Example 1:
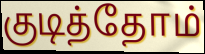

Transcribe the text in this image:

குடித்தோம்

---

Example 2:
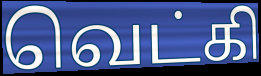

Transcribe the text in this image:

வெட்கி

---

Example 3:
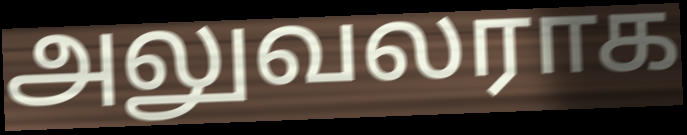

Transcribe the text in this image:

அலுவலராக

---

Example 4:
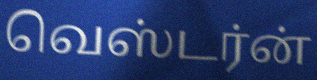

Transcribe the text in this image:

வெஸ்டர்ன்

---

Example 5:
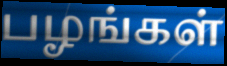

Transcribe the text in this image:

பழங்கள்